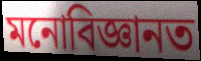
মনোবিজ্ঞানত